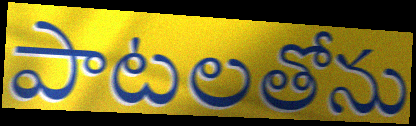
పాటలతోను